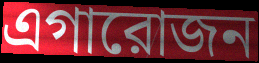
এগারোজন